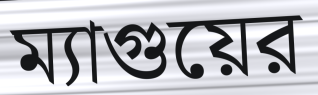
ম্যাগুয়ের